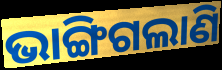
ଭାଙ୍ଗିଗଲାଣି